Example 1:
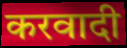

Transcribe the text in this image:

करवादी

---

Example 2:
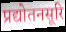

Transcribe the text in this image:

प्रद्योतनसूरि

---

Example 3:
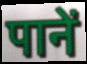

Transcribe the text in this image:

पानें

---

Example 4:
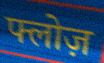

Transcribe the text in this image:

फ्लोज़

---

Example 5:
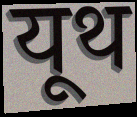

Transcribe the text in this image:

यूथ